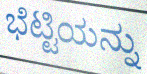
ಭೆಟ್ಟಿಯನ್ನು